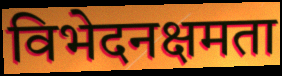
विभेदनक्षमता